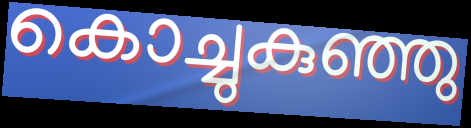
കൊച്ചുകുഞ്ഞു